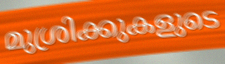
മുശ്രിക്കുകളുടെ